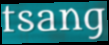
tsang